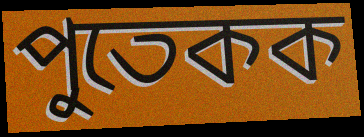
পুতেকক